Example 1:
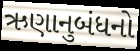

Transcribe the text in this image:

ઋણાનુબંધનો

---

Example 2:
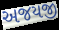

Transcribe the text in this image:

અજયજી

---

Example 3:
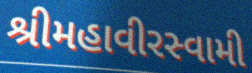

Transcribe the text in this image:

શ્રીમહાવીરસ્વામી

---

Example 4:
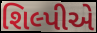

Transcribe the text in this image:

શિલ્પીએ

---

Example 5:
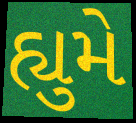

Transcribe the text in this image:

હ્યુમે